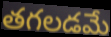
తగలడమే